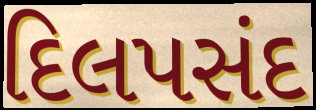
દિલપસંદ